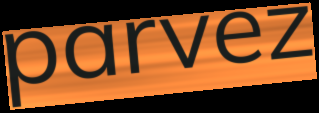
parvez